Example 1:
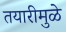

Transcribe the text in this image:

तयारीमुळे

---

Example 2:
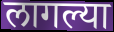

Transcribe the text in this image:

लागल्‍या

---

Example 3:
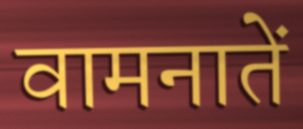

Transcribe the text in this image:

वामनातें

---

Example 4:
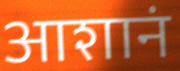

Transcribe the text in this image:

आशानं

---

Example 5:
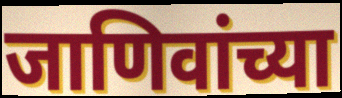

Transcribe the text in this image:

जाणिवांच्या